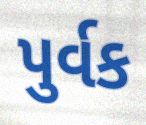
પુર્વક